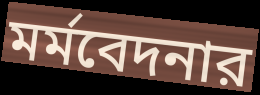
মর্মবেদনার